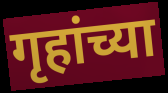
गृहांच्या